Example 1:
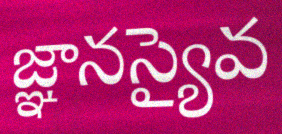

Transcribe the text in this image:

జ్ఞానస్యైవ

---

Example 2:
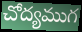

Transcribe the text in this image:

చోద్యముగ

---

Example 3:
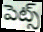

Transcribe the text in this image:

పెట్స్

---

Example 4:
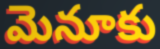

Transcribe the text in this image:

మెనూకు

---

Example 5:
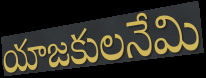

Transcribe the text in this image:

యాజకులనేమి